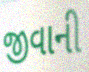
જીવાની